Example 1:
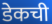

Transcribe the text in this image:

डेकची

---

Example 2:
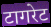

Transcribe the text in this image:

टागरेट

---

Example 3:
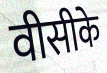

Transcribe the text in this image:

वीसीके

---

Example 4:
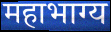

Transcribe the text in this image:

महाभाग्य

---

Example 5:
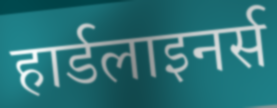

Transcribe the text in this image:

हार्डलाइनर्स